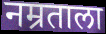
नम्रताला